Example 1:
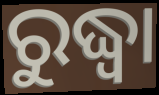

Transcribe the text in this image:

ରୁଦ୍ଧ୍ୱା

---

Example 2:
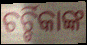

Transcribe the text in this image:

ଚର୍ଚ୍ଚିକାଙ୍କ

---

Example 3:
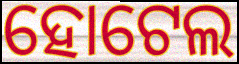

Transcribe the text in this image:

ହୋଟେଲ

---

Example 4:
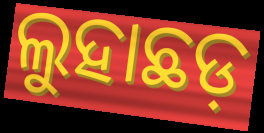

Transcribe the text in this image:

ଲୁହାଛଡ଼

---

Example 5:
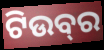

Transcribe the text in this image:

ଟିଉବ୍‍ର